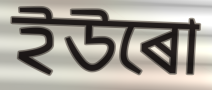
ইউৰো